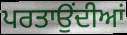
ਪਰਤਾਉਂਦੀਆਂ